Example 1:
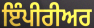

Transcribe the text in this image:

ਇੰਪੀਰੀਅਰ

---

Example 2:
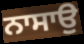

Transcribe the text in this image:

ਨਾਸਾਉ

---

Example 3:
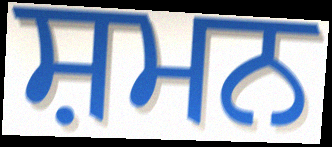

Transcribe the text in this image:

ਸ਼ਮਨ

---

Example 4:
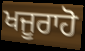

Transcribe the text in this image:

ਖਜੂਰਾਹੋ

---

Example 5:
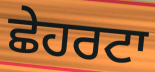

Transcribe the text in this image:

ਛੇਹਰਟਾ